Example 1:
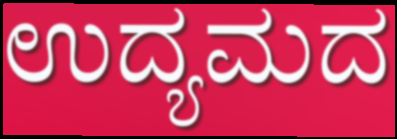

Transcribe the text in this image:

ಉದ್ಯಮದ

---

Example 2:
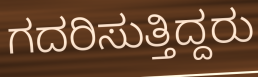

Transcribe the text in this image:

ಗದರಿಸುತ್ತಿದ್ದರು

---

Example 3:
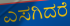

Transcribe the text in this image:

ಎಸಗಿದರೆ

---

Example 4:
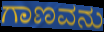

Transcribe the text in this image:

ಗಾಣವನು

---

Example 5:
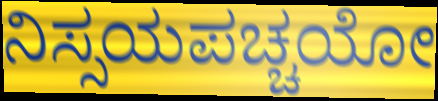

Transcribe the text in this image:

ನಿಸ್ಸಯಪಚ್ಚಯೋ